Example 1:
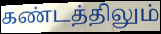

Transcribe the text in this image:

கண்டத்திலும்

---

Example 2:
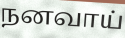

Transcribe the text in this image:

நனவாய்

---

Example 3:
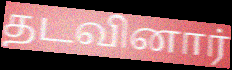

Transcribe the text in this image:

தடவினார்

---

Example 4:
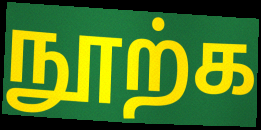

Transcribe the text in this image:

நூற்க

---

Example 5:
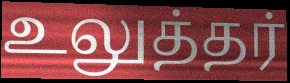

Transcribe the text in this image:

உலுத்தர்